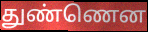
துண்ணென